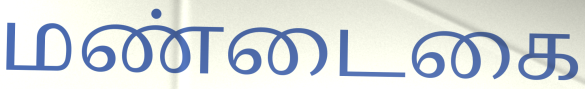
மண்டைகை